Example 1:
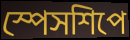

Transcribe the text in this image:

স্পেসশিপে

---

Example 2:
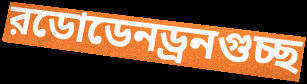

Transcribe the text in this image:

রডোডেনড্রনগুচ্ছ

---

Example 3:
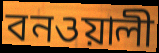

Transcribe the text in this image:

বনওয়ালী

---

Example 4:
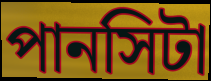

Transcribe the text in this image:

পানসিটা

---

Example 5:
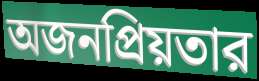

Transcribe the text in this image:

অজনপ্রিয়তার